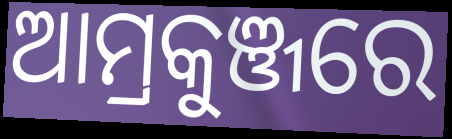
ଆମ୍ରକୁଞ୍ଜରେ